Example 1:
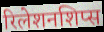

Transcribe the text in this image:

रिलेशनशिप्स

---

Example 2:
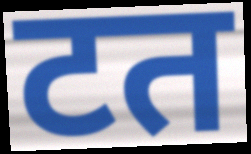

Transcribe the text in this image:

टत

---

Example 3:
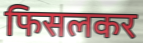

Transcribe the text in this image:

फिसलकर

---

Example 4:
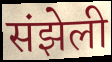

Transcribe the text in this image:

संझेली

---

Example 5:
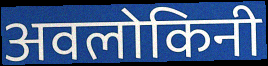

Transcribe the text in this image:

अवलोकिनी